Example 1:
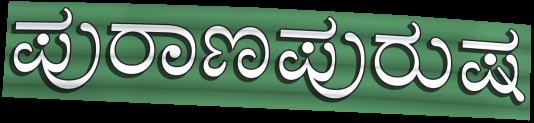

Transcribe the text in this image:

ಪುರಾಣಪುರುಷ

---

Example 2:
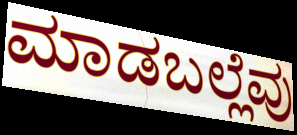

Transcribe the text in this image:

ಮಾಡಬಲ್ಲೆವು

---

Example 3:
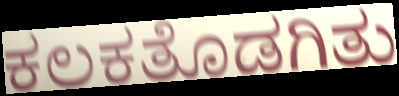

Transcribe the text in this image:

ಕಲಕತೊಡಗಿತು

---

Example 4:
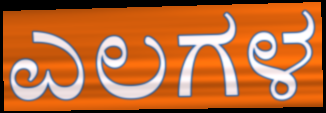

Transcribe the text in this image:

ಎಲಗಳ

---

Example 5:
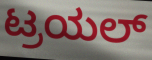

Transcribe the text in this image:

ಟ್ರಯಲ್